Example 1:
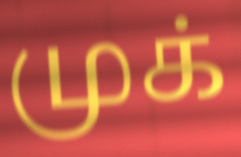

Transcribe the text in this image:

முக்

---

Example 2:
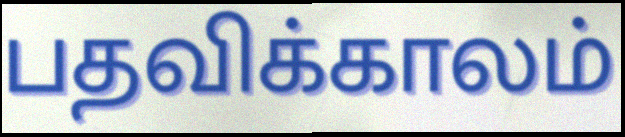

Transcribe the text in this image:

பதவிக்காலம்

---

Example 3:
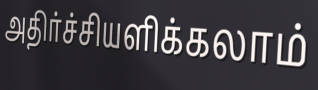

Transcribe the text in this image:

அதிர்ச்சியளிக்கலாம்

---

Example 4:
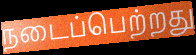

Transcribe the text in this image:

நடைப்பெற்றது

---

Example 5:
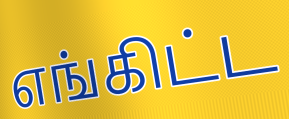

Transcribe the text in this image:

எங்கிட்ட